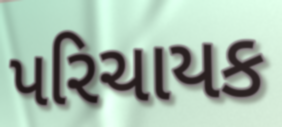
પરિચાયક